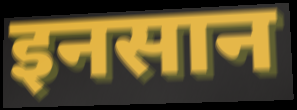
इनसान